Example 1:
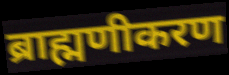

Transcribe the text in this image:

ब्राह्मणीकरण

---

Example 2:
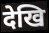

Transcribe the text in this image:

देखि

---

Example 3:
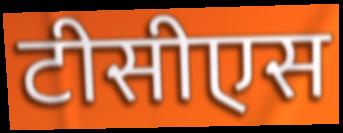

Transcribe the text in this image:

टीसीएस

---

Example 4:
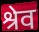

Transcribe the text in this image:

श्रेव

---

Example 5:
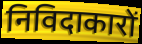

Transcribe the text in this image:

निविदाकारों